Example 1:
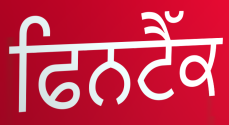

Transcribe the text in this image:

ਫਿਨਟੈੱਕ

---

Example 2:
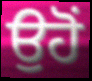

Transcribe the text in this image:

ਉਹੋਂ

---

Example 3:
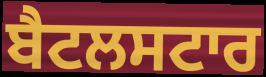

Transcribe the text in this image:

ਬੈਟਲਸਟਾਰ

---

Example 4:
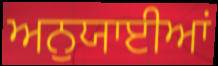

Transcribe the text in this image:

ਅਨੁਯਾਈਆਂ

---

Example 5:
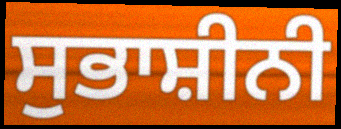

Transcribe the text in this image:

ਸੁਭਾਸ਼ੀਨੀ